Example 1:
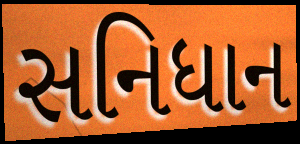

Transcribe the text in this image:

સનિધાન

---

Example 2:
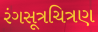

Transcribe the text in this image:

રંગસૂત્રચિત્રણ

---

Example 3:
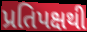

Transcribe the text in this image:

પ્રતિપક્ષથી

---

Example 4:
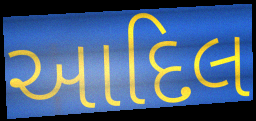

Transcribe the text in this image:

આદિલ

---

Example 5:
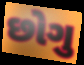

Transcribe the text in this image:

છોગુ